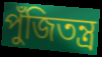
পুঁজিতন্ত্র